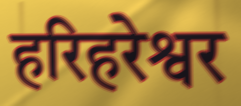
हरिहरेश्वर